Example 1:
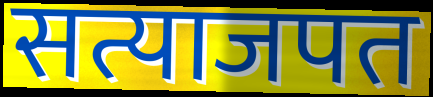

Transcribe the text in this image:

सत्याजपत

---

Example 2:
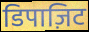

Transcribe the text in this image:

डिपाज़िट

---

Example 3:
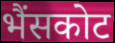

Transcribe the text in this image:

भैंसकोट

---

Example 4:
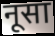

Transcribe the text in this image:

नूसा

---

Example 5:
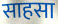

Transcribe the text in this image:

साहसा